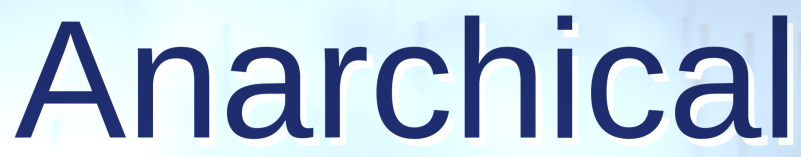
Anarchical